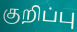
குறிப்பு